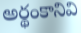
అర్థంకానివి